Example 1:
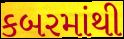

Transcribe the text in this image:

કબરમાંથી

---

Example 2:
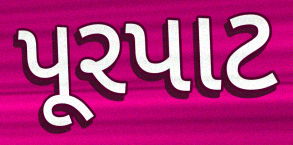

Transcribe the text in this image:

પૂરપાટ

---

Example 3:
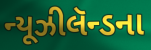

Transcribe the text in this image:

ન્યૂઝીલૅન્ડના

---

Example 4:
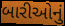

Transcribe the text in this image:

બારીઓનું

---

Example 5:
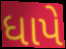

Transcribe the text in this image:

ધાપે